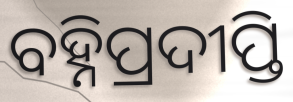
ବହ୍ନିପ୍ରଦୀପ୍ତି